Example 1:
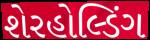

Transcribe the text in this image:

શેરહોલ્ડિંગ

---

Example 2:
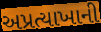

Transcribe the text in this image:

અપ્રત્યાખાની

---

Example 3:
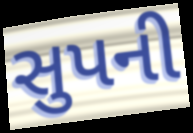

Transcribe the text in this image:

સુપની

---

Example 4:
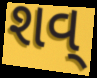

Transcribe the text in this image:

શવ્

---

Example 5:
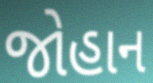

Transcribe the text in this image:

જોહાન